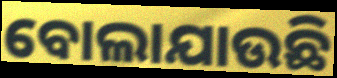
ବୋଲାଯାଉଛି